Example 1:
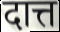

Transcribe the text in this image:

दात्त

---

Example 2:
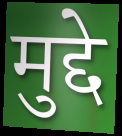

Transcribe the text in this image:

मुद्दे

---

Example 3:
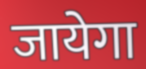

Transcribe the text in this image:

जायेगा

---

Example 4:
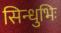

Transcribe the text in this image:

सिन्धुभिः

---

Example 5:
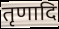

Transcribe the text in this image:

तृणादि